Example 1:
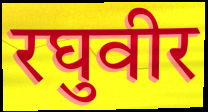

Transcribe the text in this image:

रघुवीर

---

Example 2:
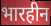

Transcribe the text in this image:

भारहीन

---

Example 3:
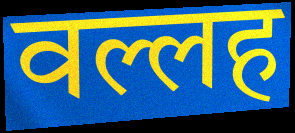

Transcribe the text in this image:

वल्लह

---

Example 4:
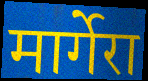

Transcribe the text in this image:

मार्गेरा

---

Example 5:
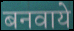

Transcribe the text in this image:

बनवाये